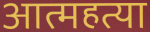
आत्महत्या